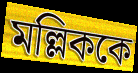
মল্লিককে